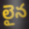
లైన